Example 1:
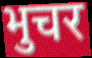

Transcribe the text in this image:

भुचर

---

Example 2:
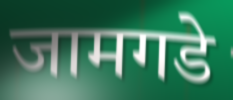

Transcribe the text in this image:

जामगडे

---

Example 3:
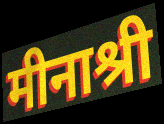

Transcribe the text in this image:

मीनाश्री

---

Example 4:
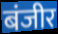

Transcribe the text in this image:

बंजीर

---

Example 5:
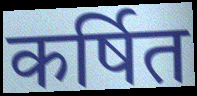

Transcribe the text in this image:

कर्षित